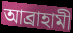
আব্ৰাহামী